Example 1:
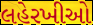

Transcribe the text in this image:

લહેરખીઓ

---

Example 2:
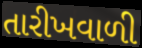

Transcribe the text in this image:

તારીખવાળી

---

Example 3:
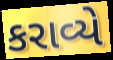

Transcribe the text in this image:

કરાવ્યે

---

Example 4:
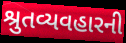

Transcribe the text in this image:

શ્રુતવ્યવહારની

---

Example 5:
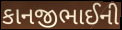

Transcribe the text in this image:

કાનજીભાઈની